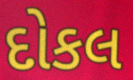
દોકલ